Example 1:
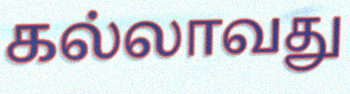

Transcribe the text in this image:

கல்லாவது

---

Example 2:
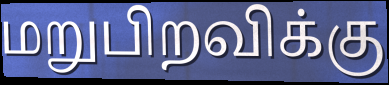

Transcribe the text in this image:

மறுபிறவிக்கு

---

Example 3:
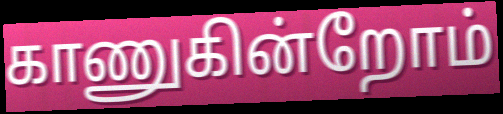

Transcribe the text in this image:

காணுகின்றோம்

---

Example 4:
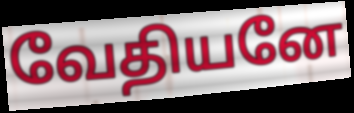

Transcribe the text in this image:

வேதியனே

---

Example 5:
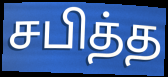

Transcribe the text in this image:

சபித்த